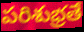
పరిశుభ్రతే